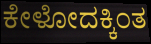
ಕೇಳೋದಕ್ಕಿಂತ